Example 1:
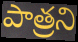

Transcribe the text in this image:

పాత్రని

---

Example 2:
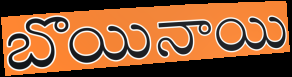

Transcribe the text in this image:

బొయినాయి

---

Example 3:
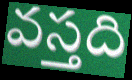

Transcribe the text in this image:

వస్తది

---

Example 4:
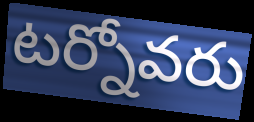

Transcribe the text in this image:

టర్నోవరు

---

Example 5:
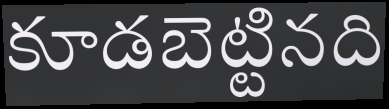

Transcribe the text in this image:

కూడబెట్టినది